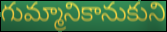
గుమ్మానికానుకుని